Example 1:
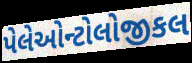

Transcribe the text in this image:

પેલેઓન્ટોલોજીકલ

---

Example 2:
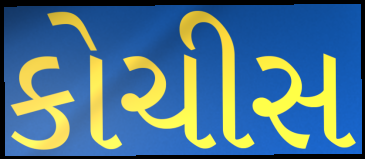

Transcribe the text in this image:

કોચીસ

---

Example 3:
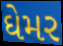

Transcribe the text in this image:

ઘેમર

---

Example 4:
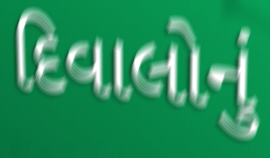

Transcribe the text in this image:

દિવાલોનું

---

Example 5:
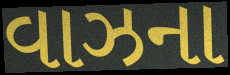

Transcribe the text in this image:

વાઝના